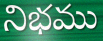
నిభము